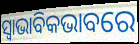
ସ୍ୱାଭାବିକଭାବରେ